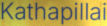
Kathapillai